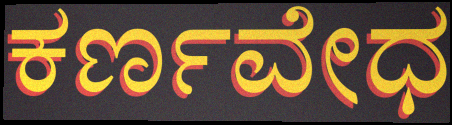
ಕರ್ಣವೇಧ